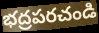
భద్రపరచండి